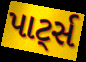
પાર્ટ્સ